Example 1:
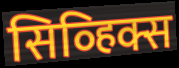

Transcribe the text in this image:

सिव्हिक्स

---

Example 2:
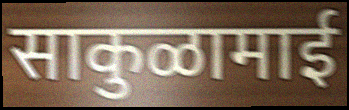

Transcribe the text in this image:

साकुळामाई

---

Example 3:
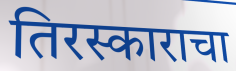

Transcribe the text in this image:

तिरस्काराचा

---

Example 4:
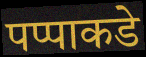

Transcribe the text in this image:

पप्पाकडे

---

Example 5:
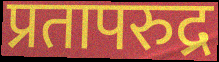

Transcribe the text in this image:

प्रतापरुद्र